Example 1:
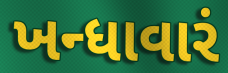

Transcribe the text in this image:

ખન્ધાવારં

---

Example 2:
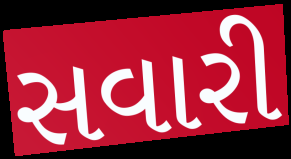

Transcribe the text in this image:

સવારી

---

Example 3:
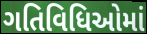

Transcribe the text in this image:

ગતિવિધિઓમાં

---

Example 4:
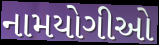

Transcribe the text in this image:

નામયોગીઓ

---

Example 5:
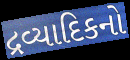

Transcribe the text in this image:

દ્રવ્યાદિકનો